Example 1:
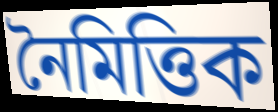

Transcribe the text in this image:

নৈমিত্তিক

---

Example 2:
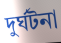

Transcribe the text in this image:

দুৰ্ঘটনা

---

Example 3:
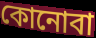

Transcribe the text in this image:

কোনোবা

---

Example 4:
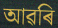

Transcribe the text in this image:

আৱৰি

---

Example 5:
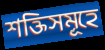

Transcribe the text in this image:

শক্তিসমূহে